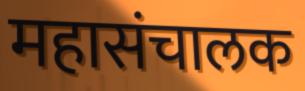
महासंचालक